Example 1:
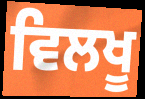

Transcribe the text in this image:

ਵਿਲਖੂ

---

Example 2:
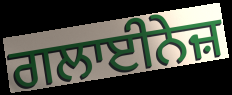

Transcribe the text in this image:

ਗਲਾਈਨੇਜ਼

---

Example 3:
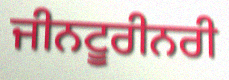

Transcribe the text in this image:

ਜੀਨਟੂਰੀਨਰੀ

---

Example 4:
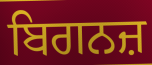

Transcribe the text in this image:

ਬਿਗਨਜ਼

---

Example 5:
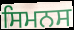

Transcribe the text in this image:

ਸਿਮਨਸ